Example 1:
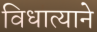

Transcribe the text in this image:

विधात्याने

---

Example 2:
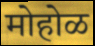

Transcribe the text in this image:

मोहोळ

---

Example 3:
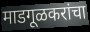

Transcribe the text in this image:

माडगूळकरांचा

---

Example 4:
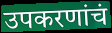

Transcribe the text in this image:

उपकरणांचं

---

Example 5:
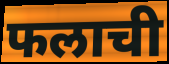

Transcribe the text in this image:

फलाची